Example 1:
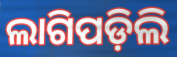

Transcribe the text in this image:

ଲାଗିପଡ଼ିଲି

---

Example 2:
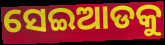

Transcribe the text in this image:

ସେଇଆଡକୁ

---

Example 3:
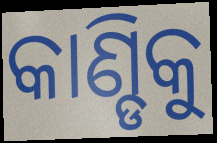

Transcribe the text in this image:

କାଣ୍ଡିକୁ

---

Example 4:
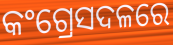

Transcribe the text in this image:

କଂଗ୍ରେସଦଳରେ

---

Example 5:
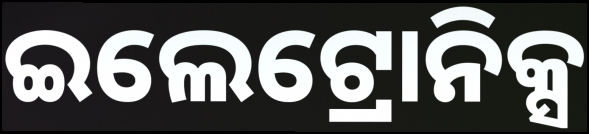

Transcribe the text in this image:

ଇଲେଟ୍ରୋନିକ୍ସ